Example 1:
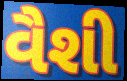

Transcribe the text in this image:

વૈશી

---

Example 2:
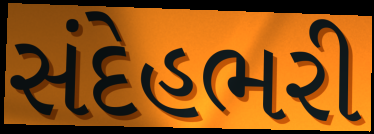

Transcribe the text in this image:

સંદેહભરી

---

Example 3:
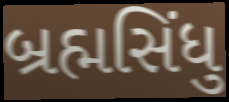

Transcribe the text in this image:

બ્રહ્મસિંધુ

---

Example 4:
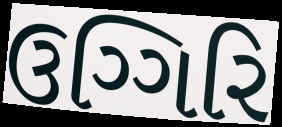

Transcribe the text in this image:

ઉગ્ગિરિ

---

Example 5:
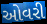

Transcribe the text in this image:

ઓવરી